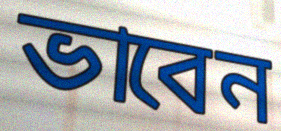
ভাবেন